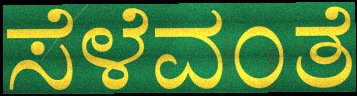
ಸೆಳೆವಂತೆ